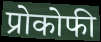
प्रोकोफी